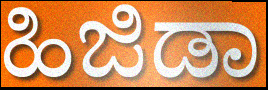
ಹಿಜಿಡಾ